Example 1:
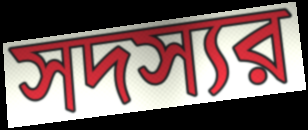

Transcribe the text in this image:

সদস্যর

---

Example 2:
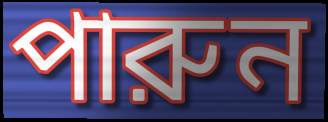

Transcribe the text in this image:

পারুন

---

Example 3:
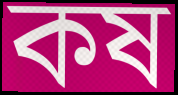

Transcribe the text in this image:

কষ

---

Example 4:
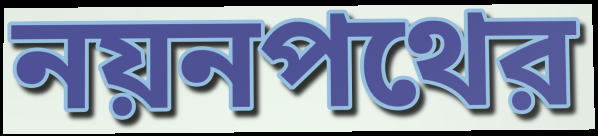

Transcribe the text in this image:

নয়নপথের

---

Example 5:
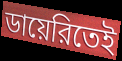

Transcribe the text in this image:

ডায়েরিতেই